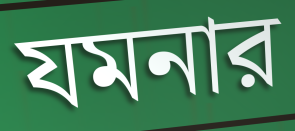
যমনার